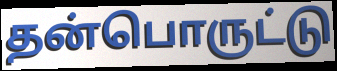
தன்பொருட்டு